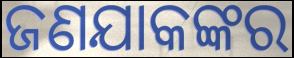
ଜଣଯାକଙ୍କର